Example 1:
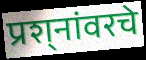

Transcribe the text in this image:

प्रश्नांवरचे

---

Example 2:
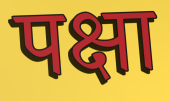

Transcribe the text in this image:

पक्षा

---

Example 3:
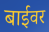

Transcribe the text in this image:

बाईवर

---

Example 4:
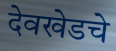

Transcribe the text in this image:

देवखेडचे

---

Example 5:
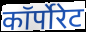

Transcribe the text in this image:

कॉर्पोरेट